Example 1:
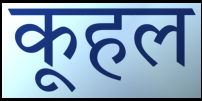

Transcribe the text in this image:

कूहल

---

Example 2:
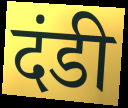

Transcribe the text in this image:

दंडी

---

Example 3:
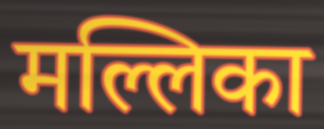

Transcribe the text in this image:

मल्लिका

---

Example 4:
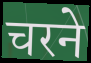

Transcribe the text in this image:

चरने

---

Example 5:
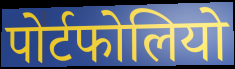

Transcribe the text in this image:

पोर्टफोलियो